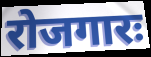
रोजगारः